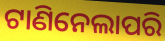
ଟାଣିନେଲାପରି